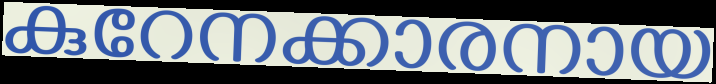
കുറേനക്കാരനായ